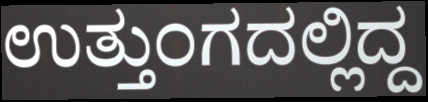
ಉತ್ತುಂಗದಲ್ಲಿದ್ದ